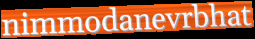
nimmodanevrbhat